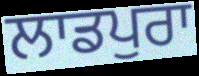
ਲਾਡਪੁਰਾ